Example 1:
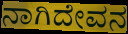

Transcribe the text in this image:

ನಾಗಿದೇವನ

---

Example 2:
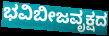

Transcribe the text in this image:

ಭವಿಬೀಜವೃಕ್ಷದ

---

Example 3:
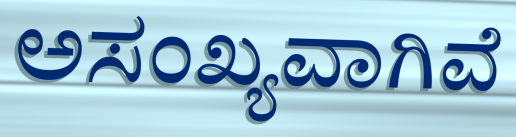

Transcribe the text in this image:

ಅಸಂಖ್ಯವಾಗಿವೆ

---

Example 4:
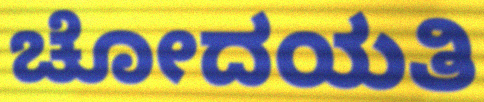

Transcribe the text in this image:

ಚೋದಯತಿ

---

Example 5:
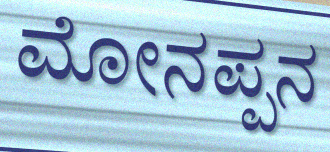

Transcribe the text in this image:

ಮೋನಪ್ಪನ